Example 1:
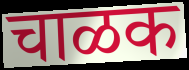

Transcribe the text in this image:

चाळक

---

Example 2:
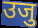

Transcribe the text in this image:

उजु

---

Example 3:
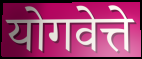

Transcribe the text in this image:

योगवेत्ते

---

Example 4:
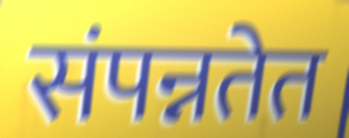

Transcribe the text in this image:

संपन्नतेत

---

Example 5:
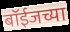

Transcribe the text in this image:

बॉईजच्या